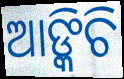
ଆଙ୍କିଚି